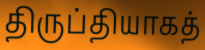
திருப்தியாகத்